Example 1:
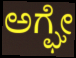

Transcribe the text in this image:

ಅಗ್ಘೇ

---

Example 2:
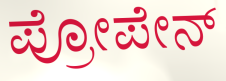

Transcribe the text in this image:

ಪ್ರೋಪೇನ್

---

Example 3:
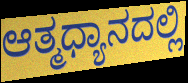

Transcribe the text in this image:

ಆತ್ಮಧ್ಯಾನದಲ್ಲಿ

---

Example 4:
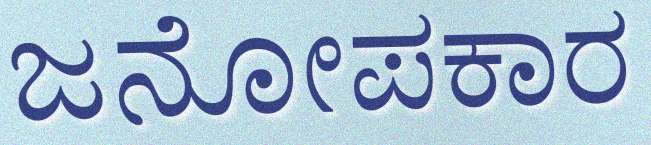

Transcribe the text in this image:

ಜನೋಪಕಾರ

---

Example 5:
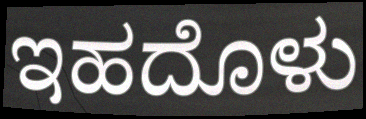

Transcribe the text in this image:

ಇಹದೊಳು